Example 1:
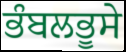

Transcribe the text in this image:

ਭੰਬਲਭੂਸੇ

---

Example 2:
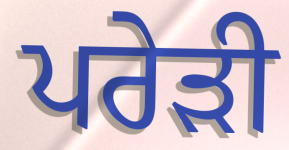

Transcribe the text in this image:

ਪਰੇੜੀ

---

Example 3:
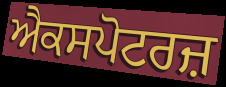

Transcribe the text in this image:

ਐਕਸਪੋਟਰਜ਼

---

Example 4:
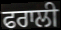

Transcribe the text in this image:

ਫਰਾਲੀ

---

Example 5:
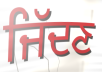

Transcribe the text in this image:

ਜਿੱਦਣ